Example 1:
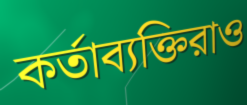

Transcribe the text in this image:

কর্তাব্যক্তিরাও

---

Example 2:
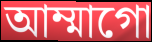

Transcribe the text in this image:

আম্মাগো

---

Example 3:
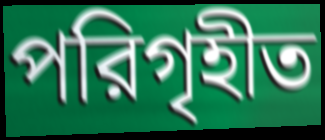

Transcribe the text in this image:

পরিগৃহীত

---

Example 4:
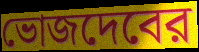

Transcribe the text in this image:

ভোজদেবের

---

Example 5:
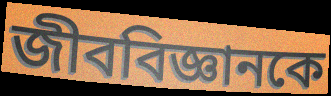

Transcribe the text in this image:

জীববিজ্ঞানকে